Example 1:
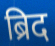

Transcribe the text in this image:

ब्रिद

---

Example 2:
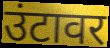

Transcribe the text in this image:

उंटावर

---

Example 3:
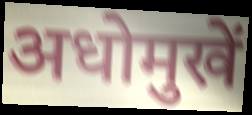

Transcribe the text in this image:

अधोमुखें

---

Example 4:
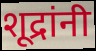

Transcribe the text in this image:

शूद्रांनी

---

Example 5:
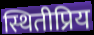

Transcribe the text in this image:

स्थितीप्रिय